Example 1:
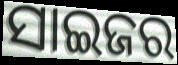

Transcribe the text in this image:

ସାଇଜର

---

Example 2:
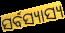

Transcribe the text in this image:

ସର୍ବସ୍ୟାସ୍ୟ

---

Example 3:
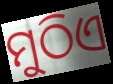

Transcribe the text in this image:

ମୁଠିଏ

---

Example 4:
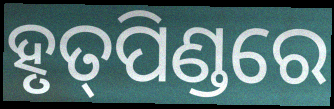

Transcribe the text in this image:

ହୃତ୍‌ପିଣ୍ଡରେ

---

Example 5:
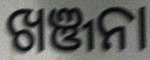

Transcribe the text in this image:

ଖଞ୍ଜନା